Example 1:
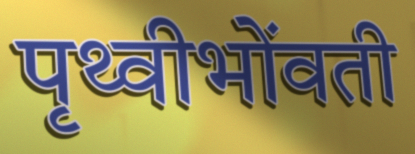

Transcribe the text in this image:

पृथ्वीभोंवती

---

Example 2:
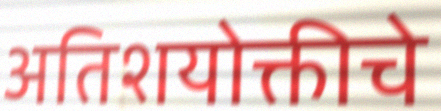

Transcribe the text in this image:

अतिशयोक्तीचे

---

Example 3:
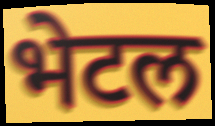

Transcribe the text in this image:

भेटल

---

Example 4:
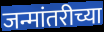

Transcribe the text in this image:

जन्मांतरीच्या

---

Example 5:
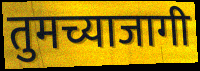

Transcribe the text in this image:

तुमच्याजागी